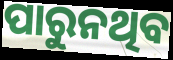
ପାରୁନଥିବ